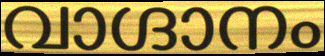
വാഗ്ദാനം